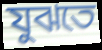
যুঝতে